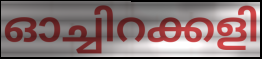
ഓച്ചിറക്കളി